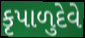
કૃપાળુદેવે